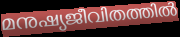
മനുഷ്യജീവിതത്തിൽ